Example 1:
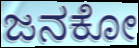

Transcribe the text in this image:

ಜನಕೋ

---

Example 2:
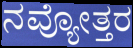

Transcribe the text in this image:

ನವ್ಯೋತ್ತರ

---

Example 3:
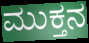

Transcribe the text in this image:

ಮುಕ್ತನ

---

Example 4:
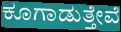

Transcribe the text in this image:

ಕೂಗಾಡುತ್ತೇವೆ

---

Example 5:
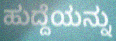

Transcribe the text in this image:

ಹುದ್ದೆಯನ್ನು